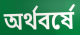
অর্থবর্ষে